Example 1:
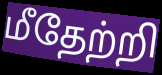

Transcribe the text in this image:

மீதேற்றி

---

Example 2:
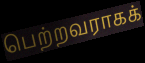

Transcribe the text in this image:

பெற்றவராகக்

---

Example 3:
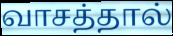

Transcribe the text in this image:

வாசத்தால்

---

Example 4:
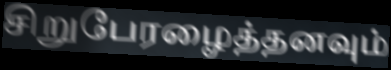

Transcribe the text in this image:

சிறுபேரழைத்தனவும்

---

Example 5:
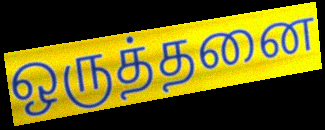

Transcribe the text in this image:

ஒருத்தனை